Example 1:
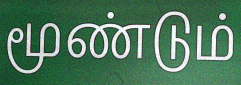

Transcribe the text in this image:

மூண்டும்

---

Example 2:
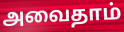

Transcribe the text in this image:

அவைதாம்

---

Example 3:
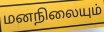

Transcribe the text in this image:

மனநிலையும்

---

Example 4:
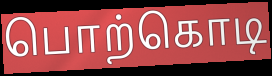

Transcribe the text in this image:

பொற்கொடி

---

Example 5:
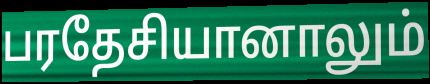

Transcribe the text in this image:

பரதேசியானாலும்